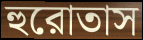
হুরোতাস